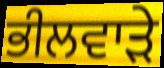
ਭੀਲਵਾੜੇ